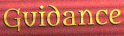
Guidance